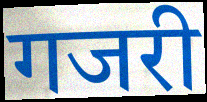
गजरी